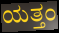
ಯತ್ತಂ